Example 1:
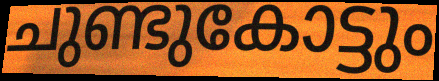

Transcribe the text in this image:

ചുണ്ടുകോട്ടും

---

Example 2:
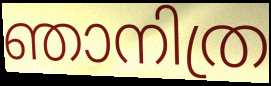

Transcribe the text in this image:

ഞാനിത്ര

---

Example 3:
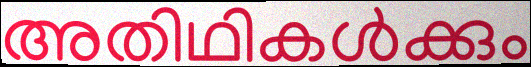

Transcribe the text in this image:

അതിഥികൾക്കും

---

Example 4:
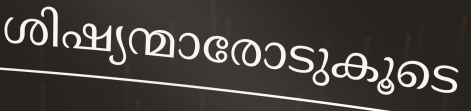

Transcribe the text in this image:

ശിഷ്യന്മാരോടുകൂടെ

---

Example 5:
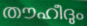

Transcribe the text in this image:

തൗഹീദും